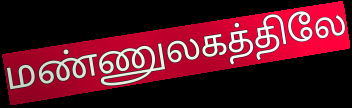
மண்ணுலகத்திலே